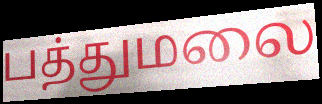
பத்துமலை